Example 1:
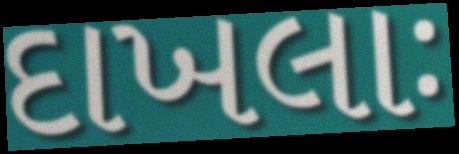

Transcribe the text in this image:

દાખલાઃ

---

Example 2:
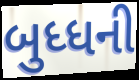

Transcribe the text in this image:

બુધ્ધની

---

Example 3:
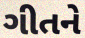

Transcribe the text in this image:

ગીતને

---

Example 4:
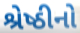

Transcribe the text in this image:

શ્રેષ્ઠીનો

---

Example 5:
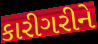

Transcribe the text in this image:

કારીગરીને